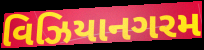
વિઝિયાનગરમ